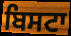
ਬਿਸਟਾ